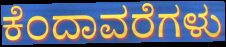
ಕೆಂದಾವರೆಗಳು